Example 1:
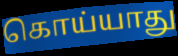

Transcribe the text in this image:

கொய்யாது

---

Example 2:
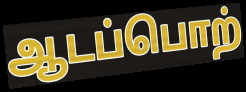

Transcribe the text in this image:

ஆடப்பொற்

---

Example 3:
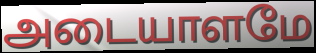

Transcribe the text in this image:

அடையாளமே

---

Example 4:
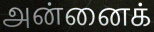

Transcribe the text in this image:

அன்னைக்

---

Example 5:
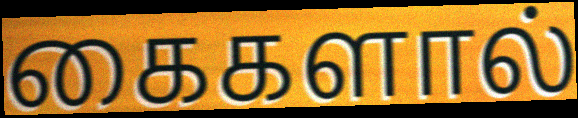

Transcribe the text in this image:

கைகளால்